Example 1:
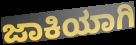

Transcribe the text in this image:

ಜಾಕಿಯಾಗಿ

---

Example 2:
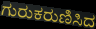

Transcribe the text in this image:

ಗುರುಕರುಣಿಸಿದ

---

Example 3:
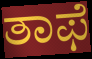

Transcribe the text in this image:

ತಾಫೆ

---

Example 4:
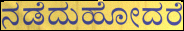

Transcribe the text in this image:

ನಡೆದುಹೋದರೆ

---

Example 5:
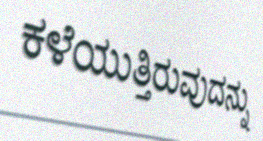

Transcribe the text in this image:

ಕಳೆಯುತ್ತಿರುವುದನ್ನು